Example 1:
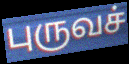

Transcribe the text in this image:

புருவச்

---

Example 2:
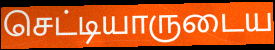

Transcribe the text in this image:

செட்டியாருடைய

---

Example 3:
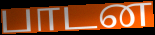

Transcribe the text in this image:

பாடன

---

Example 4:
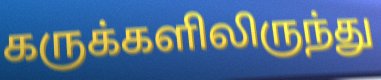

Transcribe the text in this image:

கருக்களிலிருந்து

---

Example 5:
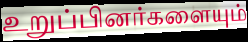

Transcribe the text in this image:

உறுப்பினர்களையும்